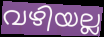
വഴിയല്ല